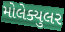
મોલેક્યુલર